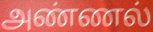
அண்ணல்